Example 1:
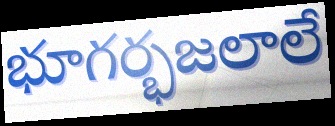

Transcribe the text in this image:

భూగర్భజలాలే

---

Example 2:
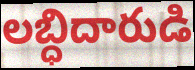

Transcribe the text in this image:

లబ్ధిదారుడి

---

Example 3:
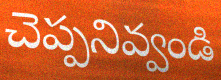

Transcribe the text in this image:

చెప్పనివ్వండి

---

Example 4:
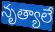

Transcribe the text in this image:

నృత్యాలే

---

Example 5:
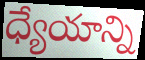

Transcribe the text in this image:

ధ్యేయాన్ని